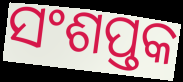
ସଂଶପ୍ତକ